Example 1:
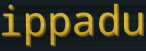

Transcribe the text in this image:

ippadu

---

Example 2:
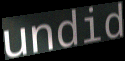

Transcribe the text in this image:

undid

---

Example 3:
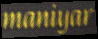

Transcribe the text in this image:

maniyar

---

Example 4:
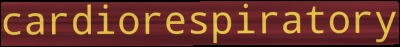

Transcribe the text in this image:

cardiorespiratory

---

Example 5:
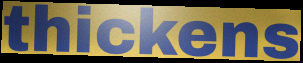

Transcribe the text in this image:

thickens